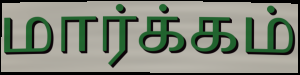
மார்க்கம்